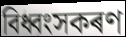
বিধ্বংসকৰণ